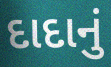
દાદાનું